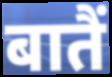
बातैं